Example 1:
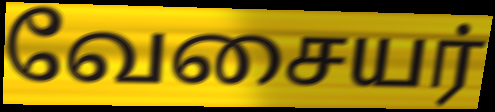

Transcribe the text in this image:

வேசையர்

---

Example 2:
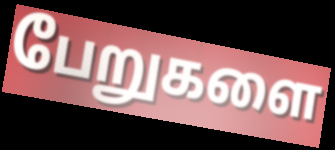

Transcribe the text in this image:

பேறுகளை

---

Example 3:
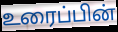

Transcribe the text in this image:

உரைப்பின்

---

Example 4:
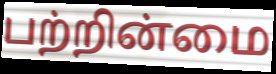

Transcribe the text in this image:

பற்றின்மை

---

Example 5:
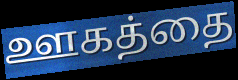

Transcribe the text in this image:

ஊகத்தை